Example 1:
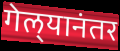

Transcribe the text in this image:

गेल्यानंतर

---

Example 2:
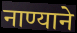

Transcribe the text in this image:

नाण्याने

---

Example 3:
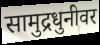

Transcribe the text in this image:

सामुद्रधुनीवर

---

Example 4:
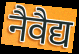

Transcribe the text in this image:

नैवैद्य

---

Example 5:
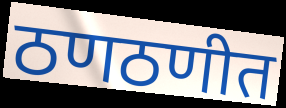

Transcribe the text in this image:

ठणठणीत